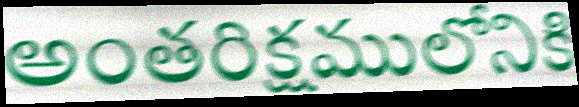
అంతరిక్షములోనికి